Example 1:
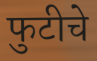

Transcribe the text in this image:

फुटीचे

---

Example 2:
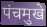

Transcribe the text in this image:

पंचमुखे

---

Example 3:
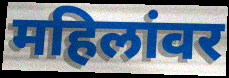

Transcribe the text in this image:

महिलांवर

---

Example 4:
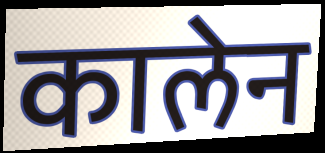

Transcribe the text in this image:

कालेन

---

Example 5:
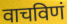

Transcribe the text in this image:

वाचविणं